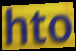
hto